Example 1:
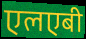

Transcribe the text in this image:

एलएबी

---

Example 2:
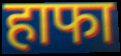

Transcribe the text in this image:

हाफा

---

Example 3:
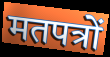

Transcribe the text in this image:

मतपत्रों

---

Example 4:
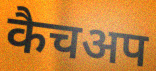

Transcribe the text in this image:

कैचअप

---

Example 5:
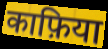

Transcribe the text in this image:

काफ़िया